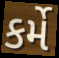
કર્મે